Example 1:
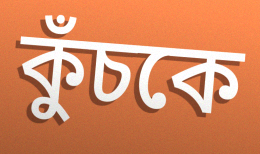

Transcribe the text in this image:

কুঁচকে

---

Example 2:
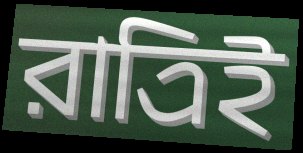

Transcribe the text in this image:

রাত্রিই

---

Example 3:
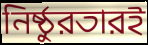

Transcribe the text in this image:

নিষ্ঠুরতারই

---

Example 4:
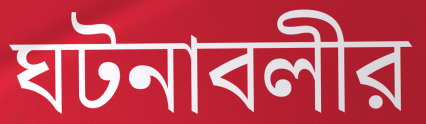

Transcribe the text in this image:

ঘটনাবলীর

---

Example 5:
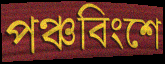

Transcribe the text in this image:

পঞ্চবিংশে